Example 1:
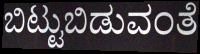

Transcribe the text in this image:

ಬಿಟ್ಟುಬಿಡುವಂತೆ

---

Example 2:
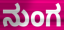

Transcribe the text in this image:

ನುಂಗ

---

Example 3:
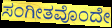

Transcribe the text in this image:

ಸಂಗೀತವೊಂದೇ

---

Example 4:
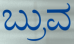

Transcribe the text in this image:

ಬ್ರುವ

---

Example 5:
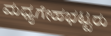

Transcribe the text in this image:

ಮಧ್ಯಗೇಹಭಟ್ಟರು